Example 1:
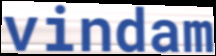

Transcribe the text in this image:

vindam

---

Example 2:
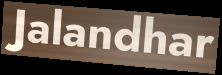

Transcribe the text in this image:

Jalandhar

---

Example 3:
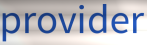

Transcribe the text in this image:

provider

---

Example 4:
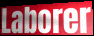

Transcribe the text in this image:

Laborer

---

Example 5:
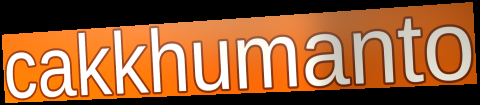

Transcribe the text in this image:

cakkhumanto